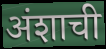
अंशाची